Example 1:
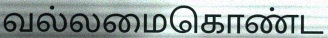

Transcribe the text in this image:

வல்லமைகொண்ட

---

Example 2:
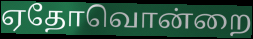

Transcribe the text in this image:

ஏதோவொன்றை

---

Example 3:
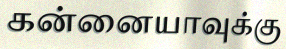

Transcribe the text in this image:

கன்னையாவுக்கு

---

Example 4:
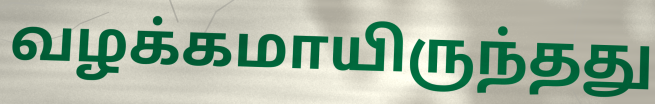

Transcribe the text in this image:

வழக்கமாயிருந்தது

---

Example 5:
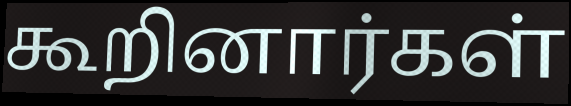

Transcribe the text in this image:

கூறினார்கள்